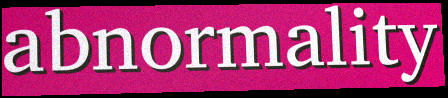
abnormality